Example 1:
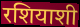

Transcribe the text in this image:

रशियाशी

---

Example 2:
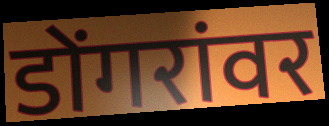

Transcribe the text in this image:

डोंगरांवर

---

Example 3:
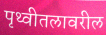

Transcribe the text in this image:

पृथ्वीतलावरील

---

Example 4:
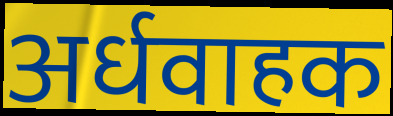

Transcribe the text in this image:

अर्धवाहक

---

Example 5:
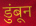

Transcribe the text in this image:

डुंबून